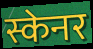
स्केनर